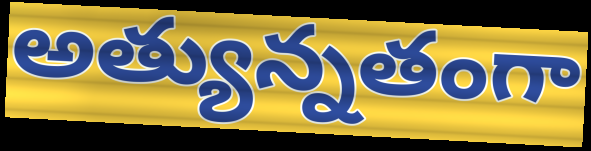
అత్యున్నతంగా